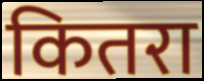
कितरा